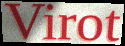
Virot